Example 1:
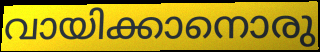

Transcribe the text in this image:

വായിക്കാനൊരു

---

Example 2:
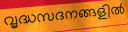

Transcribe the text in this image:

വൃദ്ധസദനങ്ങളിൽ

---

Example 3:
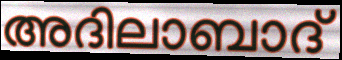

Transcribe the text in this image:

അദിലാബാദ്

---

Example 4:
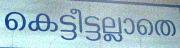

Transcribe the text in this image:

കെട്ടീട്ടല്ലാതെ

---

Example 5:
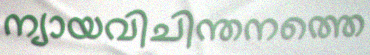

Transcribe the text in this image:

ന്യായവിചിന്തനത്തെ